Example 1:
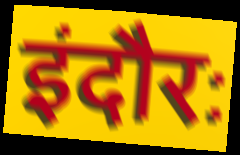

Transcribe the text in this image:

इंदौरः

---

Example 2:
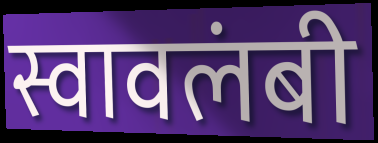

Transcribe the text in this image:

स्वावलंबी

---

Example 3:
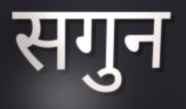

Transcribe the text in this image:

सगुन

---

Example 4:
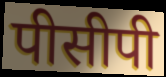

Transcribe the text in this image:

पीसीपी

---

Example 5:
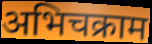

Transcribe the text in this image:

अभिचक्राम